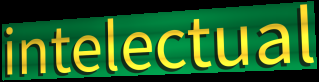
intelectual